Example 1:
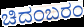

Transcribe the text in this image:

ಚಿದಂಬರಂ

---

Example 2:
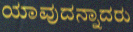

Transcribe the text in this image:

ಯಾವುದನ್ನಾದರು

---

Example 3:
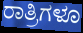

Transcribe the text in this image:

ರಾತ್ರಿಗಳೂ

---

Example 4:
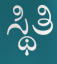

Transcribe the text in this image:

ಸ್ಥಿತಿ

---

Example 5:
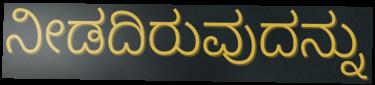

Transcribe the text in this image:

ನೀಡದಿರುವುದನ್ನು